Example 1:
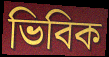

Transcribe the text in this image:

ভিবিক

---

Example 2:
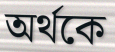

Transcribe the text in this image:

অর্থকে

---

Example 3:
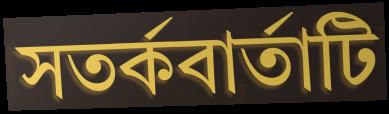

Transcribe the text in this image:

সতর্কবার্তাটি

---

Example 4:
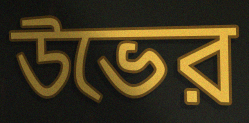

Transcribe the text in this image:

উভের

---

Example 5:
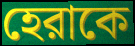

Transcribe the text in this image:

হেরাকে